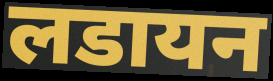
लडायन